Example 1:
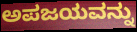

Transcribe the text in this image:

ಅಪಜಯವನ್ನು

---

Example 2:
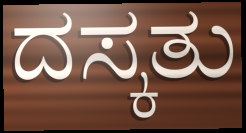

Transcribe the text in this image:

ದಸ್ಕತು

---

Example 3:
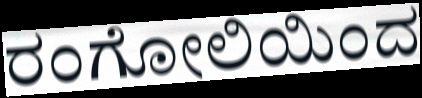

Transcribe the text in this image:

ರಂಗೋಲಿಯಿಂದ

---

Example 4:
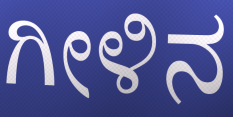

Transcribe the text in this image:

ಗೀಳಿನ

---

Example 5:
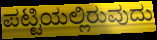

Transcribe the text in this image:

ಪಟ್ಟಿಯಲ್ಲಿರುವುದು